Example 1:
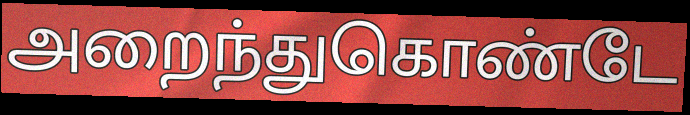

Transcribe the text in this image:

அறைந்துகொண்டே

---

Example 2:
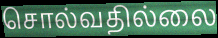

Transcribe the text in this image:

சொல்வதில்லை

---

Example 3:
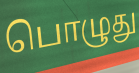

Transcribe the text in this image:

பொழுது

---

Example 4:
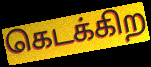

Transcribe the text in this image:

கெடக்கிற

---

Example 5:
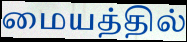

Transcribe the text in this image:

மையத்தில்